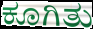
ಕೂಗಿತು